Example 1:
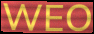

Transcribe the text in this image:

WEO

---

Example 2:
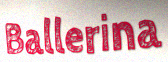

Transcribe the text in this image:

Ballerina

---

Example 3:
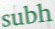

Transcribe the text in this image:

subh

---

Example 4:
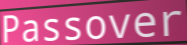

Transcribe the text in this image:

Passover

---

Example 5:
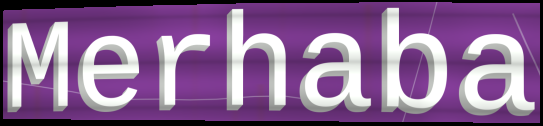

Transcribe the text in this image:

Merhaba